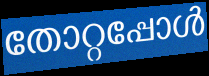
തോറ്റപ്പോൾ